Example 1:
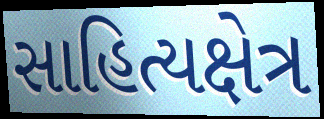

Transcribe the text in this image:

સાહિત્યક્ષેત્ર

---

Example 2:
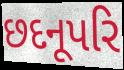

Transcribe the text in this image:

છદનૂપરિ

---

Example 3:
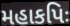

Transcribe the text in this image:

મહાકપિઃ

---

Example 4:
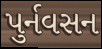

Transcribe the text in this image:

પુર્નવસન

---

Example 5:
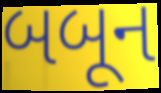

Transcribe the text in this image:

બબૂન